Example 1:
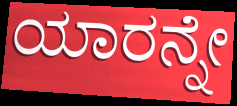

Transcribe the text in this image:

ಯಾರನ್ನೇ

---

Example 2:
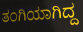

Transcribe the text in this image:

ತಂಗಿಯಾಗಿದ್ದ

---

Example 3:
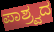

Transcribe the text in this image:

ಪಾಶ್ರ್ವದ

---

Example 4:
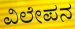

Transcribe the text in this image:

ವಿಲೇಪನ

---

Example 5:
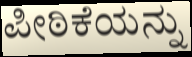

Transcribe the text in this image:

ಪೀಠಿಕೆಯನ್ನು